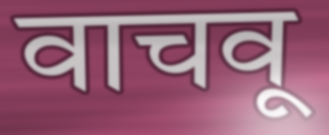
वाचवू